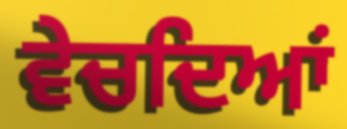
ਵੇਚਦਿਆਂ